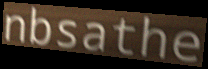
nbsathe